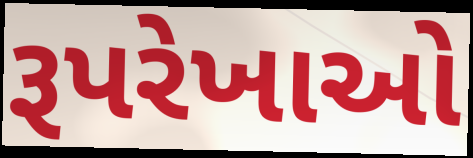
રૂપરેખાઓ